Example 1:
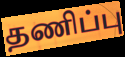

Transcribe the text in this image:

தணிப்பு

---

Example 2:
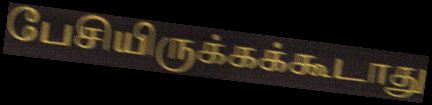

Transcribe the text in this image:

பேசியிருக்கக்கூடாது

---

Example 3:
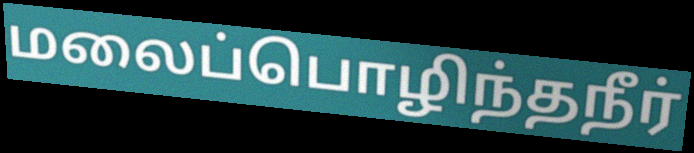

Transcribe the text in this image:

மலைப்பொழிந்தநீர்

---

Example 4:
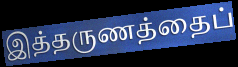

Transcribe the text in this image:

இத்தருணத்தைப்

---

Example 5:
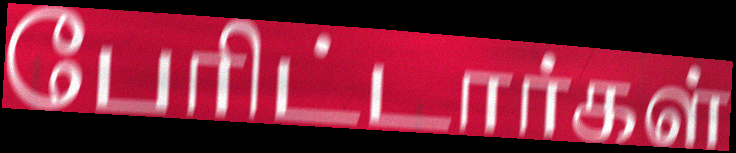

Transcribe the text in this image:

பேரிட்டார்கள்